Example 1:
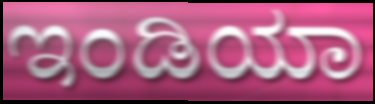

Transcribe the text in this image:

ಇಂಡಿಯಾ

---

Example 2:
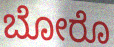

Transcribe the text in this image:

ಬೋರೊ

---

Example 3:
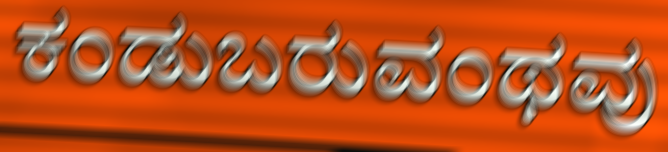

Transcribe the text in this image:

ಕಂಡುಬರುವಂಥವು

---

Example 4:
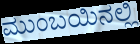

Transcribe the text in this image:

ಮುಂಬಯಿನಲ್ಲಿ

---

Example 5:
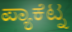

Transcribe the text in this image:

ಪ್ಯಾಕೆಟ್ನ